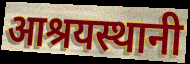
आश्रयस्थानी